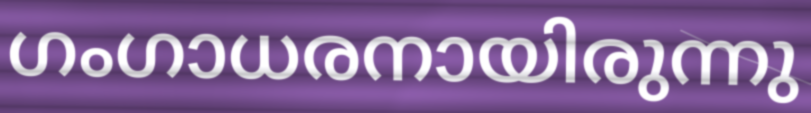
ഗംഗാധരനായിരുന്നു